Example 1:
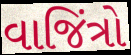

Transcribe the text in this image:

વાજિંત્રો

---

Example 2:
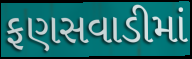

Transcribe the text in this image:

ફણસવાડીમાં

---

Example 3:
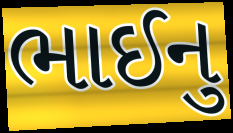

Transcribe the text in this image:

ભાઈનુ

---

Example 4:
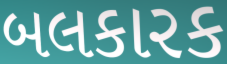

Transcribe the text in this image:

બલકારક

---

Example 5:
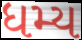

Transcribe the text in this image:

ધમ્ય